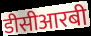
डीसीआरबी